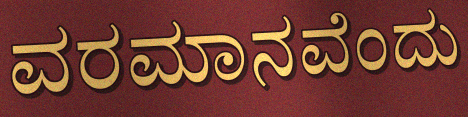
ವರಮಾನವೆಂದು